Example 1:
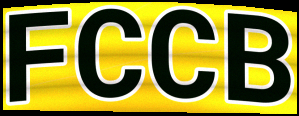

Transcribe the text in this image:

FCCB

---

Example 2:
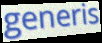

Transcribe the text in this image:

generis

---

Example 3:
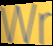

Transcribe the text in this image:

Wr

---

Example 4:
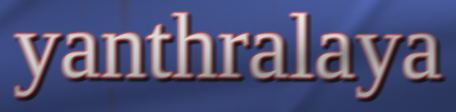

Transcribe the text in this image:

yanthralaya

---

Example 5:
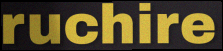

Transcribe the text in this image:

ruchire